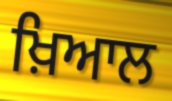
ਖ਼ਿਆਲ